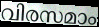
വിരസമാം